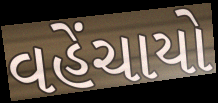
વહેંચાયો